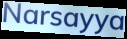
Narsayya